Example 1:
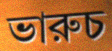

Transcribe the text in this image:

ভারুচ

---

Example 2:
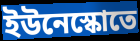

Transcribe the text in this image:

ইউনেস্কোতে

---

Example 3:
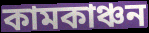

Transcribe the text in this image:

কামকাঞ্চন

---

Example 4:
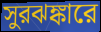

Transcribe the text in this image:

সুরঝঙ্কারে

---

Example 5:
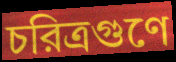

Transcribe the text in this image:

চরিত্রগুণে